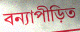
বন্যাপীড়িত